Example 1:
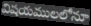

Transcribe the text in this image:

విషయములలోనూ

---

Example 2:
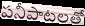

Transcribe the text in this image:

పనీపాటలతో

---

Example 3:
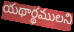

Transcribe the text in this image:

యథార్థములని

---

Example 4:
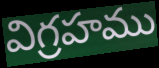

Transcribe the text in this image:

విగ్రహము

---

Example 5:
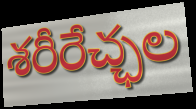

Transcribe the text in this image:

శరీరేచ్ఛల